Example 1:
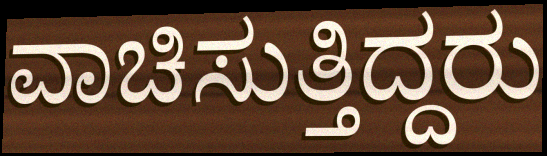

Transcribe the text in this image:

ವಾಚಿಸುತ್ತಿದ್ದರು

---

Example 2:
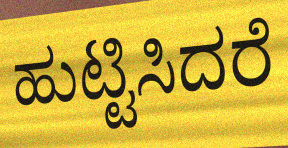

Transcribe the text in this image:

ಹುಟ್ಟಿಸಿದರೆ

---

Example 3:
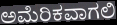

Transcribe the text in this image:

ಅಮೆರಿಕವಾಗಲಿ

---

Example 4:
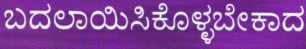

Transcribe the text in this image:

ಬದಲಾಯಿಸಿಕೊಳ್ಳಬೇಕಾದ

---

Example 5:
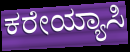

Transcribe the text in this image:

ಕರೇಯ್ಯಾಸಿ